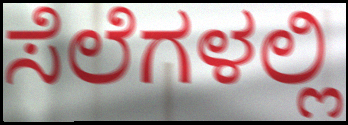
ಸೆಲೆಗಳಲ್ಲಿ